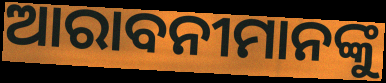
ଆରାବନୀମାନଙ୍କୁ